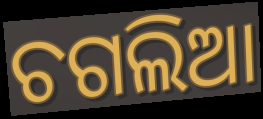
ଚଗଲିଆ